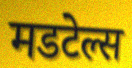
मडटेल्स